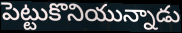
పెట్టుకొనియున్నాడు